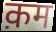
क़म